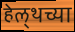
हेल्थच्या